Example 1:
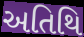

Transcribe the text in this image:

અતિથિ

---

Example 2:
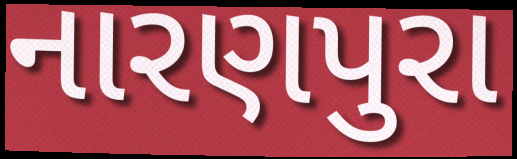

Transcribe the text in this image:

નારણપુરા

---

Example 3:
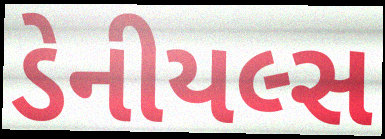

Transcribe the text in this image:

ડેનીયલ્સ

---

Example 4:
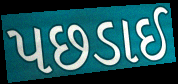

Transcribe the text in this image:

પછડાઈ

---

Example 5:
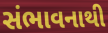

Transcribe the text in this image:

સંભાવનાથી